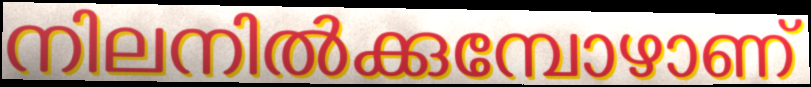
നിലനിൽക്കുമ്പോഴാണ്